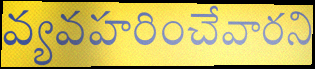
వ్యవహరించేవారని